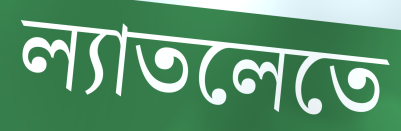
ল্যাতলেতে